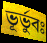
ভূর্ভুবঃ